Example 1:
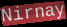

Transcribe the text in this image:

Nirnay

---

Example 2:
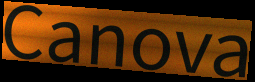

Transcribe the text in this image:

Canova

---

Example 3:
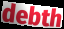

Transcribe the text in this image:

debth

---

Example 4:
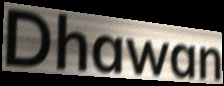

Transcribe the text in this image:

Dhawan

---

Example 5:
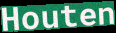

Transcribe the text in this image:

Houten